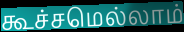
கூச்சமெல்லாம்